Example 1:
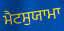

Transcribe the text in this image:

ਮੈਟਸੁਯਾਮਾ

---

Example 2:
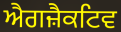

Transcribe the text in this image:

ਐਗਜ਼ੈਕਟਿਵ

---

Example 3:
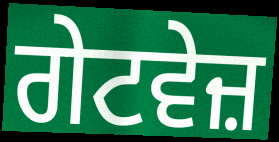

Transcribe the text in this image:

ਗੇਟਵੇਜ਼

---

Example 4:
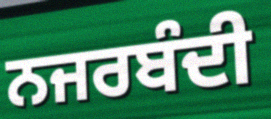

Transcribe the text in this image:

ਨਜਰਬੰਦੀ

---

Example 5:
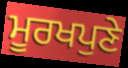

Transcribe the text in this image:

ਮੂਰਖਪੁਣੇ